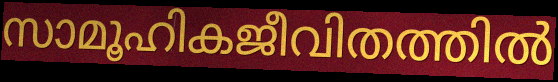
സാമൂഹികജീവിതത്തിൽ